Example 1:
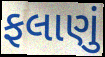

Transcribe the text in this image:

ફલાણું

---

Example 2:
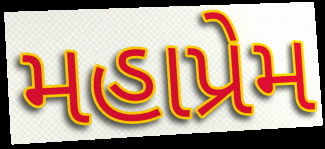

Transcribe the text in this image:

મહાપ્રેમ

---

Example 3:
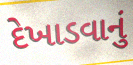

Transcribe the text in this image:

દેખાડવાનું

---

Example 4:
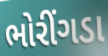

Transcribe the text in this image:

ભોરીંગડા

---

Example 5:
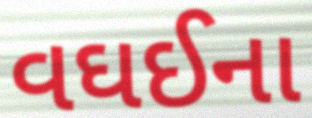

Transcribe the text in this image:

વઘઈના